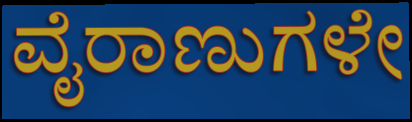
ವೈರಾಣುಗಳೇ